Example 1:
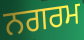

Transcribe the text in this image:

ਨਗਰਮ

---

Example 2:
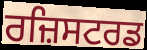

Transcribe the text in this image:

ਰਜ਼ਿਸਟਰਡ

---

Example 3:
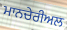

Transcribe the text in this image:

ਮਾਨਚੇਰੀਅਲ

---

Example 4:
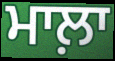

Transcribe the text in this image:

ਮਾਲ਼ਾ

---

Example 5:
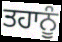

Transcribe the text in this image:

ਤਹਾਨੂੰ